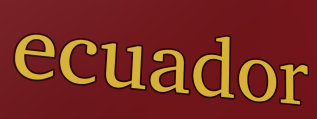
ecuador